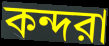
কন্দরা